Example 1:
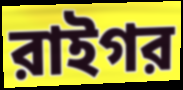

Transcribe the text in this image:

রাইগর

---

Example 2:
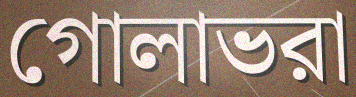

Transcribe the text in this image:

গোলাভরা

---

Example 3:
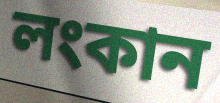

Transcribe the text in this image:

লংকান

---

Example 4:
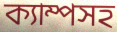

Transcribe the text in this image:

ক্যাম্পসহ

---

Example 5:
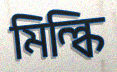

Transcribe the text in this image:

মিল্কি